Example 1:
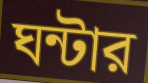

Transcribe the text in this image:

ঘন্টার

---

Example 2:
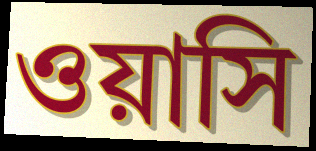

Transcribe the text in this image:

ওয়াসি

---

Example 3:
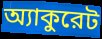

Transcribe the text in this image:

অ্যাকুরেট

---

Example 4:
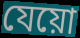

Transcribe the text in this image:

যেয়ো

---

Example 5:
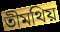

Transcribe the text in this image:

তীমথিয়